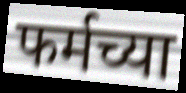
फर्मच्या